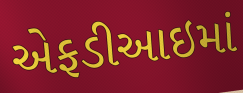
એફડીઆઇમાં